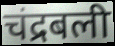
चंद्रबली